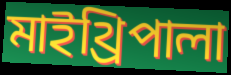
মাইথ্রিপালা